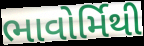
ભાવોર્મિથી